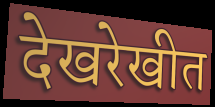
देखरेखीत